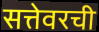
सत्तेवरची